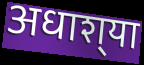
अधाश्या